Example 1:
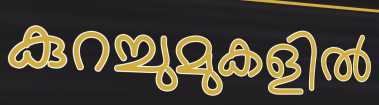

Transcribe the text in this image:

കുറച്ചുമുകളിൽ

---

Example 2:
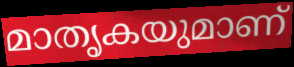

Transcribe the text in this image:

മാതൃകയുമാണ്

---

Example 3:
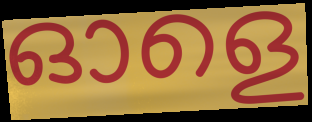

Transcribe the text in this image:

ഓളെ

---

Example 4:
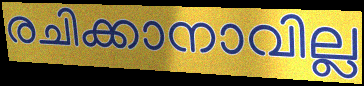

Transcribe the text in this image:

രചിക്കാനാവില്ല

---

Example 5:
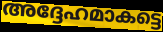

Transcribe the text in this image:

അദ്ദേഹമാകട്ടെ